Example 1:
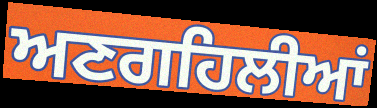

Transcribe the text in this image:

ਅਣਗਹਿਲੀਆਂ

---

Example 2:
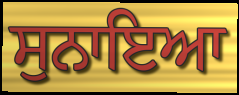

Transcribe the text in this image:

ਸੁਨਾਇਆ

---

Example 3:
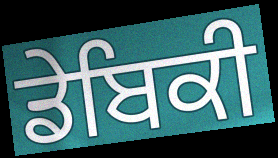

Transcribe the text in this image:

ਡੇਬਿਕੀ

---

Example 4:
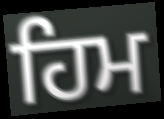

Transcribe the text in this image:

ਹਿਮ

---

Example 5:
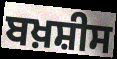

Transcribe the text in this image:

ਬਖ਼ਸ਼ੀਸ